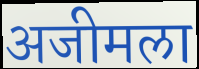
अजीमला